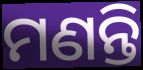
ମଣନ୍ତି